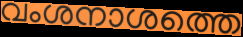
വംശനാശത്തെ